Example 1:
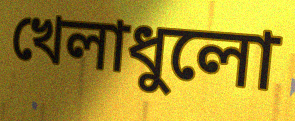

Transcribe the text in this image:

খেলাধুলো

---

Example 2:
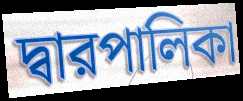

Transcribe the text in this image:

দ্বারপালিকা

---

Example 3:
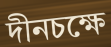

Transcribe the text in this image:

দীনচক্ষে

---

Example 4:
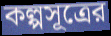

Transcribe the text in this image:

কল্পসূত্রের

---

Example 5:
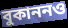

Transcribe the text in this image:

বুকাননও